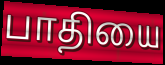
பாதியை